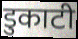
डुकाटी